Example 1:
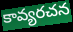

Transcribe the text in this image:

కావ్యరచన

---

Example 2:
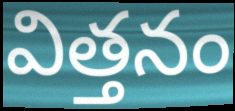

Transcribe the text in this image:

విత్తనం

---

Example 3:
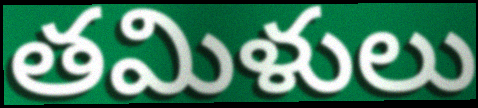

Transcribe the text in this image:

తమిళులు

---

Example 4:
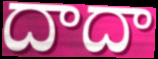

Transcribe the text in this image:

దాదా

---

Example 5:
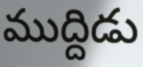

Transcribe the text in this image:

ముద్దిడు